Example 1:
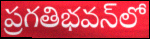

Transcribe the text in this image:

ప్రగతిభవన్‌లో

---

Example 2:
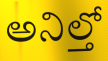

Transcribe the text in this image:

అనిల్తో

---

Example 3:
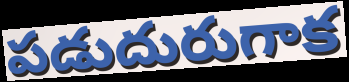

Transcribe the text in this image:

పడుదురుగాక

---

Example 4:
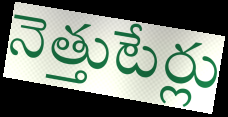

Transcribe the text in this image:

నెత్తుటేర్లు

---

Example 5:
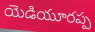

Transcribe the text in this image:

యెడియూరప్ప